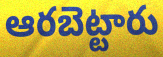
ఆరబెట్టారు